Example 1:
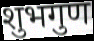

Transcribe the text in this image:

शुभगुण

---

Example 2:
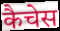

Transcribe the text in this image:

कैचेस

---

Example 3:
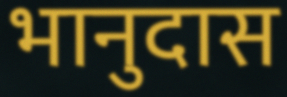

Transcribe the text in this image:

भानुदास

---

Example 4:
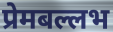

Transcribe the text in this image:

प्रेमबल्लभ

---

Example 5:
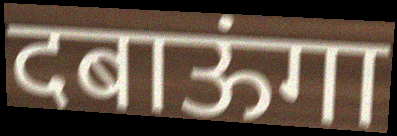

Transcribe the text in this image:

दबाऊंगा